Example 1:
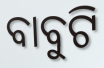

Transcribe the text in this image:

ବାବୁଟି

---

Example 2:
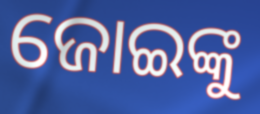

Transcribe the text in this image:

ଜୋଇଙ୍କୁ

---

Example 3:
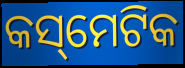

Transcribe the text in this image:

କସ୍‌ମେଟିକ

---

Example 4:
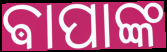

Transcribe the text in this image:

ଵାପାଙ୍କ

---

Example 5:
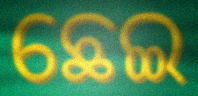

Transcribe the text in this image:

ଛେଇ